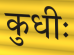
कुधीः